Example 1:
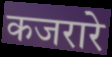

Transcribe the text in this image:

कजरारे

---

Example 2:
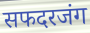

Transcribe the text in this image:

सफदरजंग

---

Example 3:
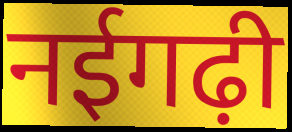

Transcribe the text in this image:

नईगढ़ी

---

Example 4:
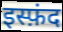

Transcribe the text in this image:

इस्फ़ंद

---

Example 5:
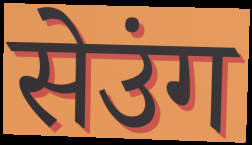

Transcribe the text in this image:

सेउंग